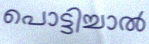
പൊട്ടിച്ചാൽ